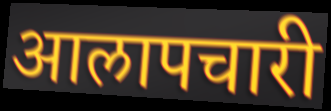
आलापचारी